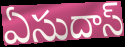
ఏసుదాస్